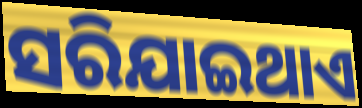
ସରିଯାଇଥାଏ